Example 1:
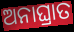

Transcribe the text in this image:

ଅନାଘ୍ରାତ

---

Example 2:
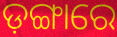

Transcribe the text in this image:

ଡ଼ଙ୍ଗାରେ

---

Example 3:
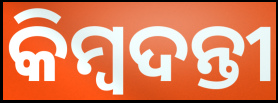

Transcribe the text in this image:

କିମ୍ଵଦନ୍ତୀ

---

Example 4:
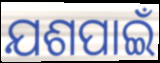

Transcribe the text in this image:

ଯଶପାଇଁ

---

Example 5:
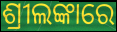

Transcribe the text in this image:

ଶ୍ରୀଲଙ୍କାରେ